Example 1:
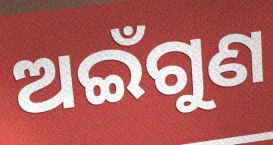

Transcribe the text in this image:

ଅଇଁଗୁଣ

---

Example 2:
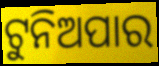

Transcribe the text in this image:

ଟୁନିଅପାର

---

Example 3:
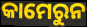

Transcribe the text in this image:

କାମେରୁନ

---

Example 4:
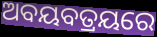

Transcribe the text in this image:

ଅବୟବତ୍ରୟରେ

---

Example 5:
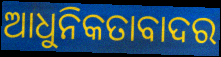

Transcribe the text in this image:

ଆଧୁନିକତାବାଦର